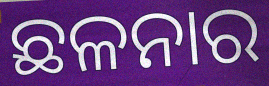
ଛଳନାର